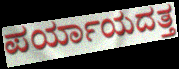
ಪರ್ಯಾಯದತ್ತ